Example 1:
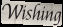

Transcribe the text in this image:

Wishing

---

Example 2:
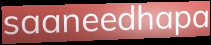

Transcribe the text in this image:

saaneedhapa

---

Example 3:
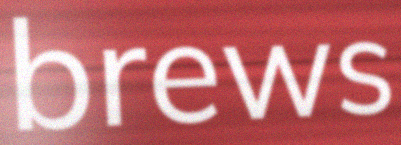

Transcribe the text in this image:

brews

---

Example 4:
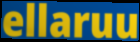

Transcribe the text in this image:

ellaruu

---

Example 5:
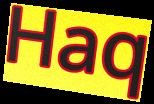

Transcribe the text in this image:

Haq